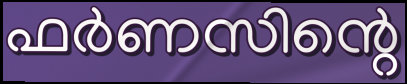
ഫർണസിന്റെ